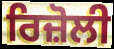
ਰਿਜ਼ੋਲੀ